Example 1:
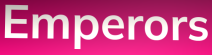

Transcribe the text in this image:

Emperors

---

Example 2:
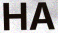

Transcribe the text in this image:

HA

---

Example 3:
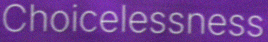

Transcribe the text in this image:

Choicelessness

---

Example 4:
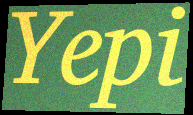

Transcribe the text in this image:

Yepi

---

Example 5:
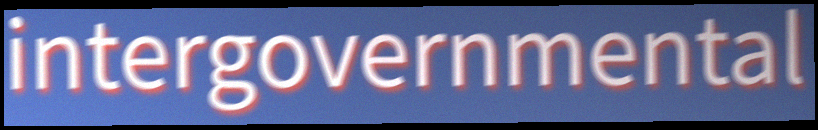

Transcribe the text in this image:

intergovernmental